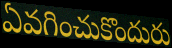
ఏవగించుకొందురు